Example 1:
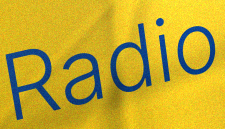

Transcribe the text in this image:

Radio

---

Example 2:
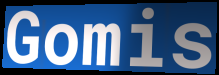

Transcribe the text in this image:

Gomis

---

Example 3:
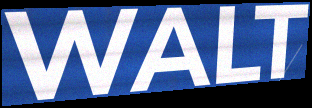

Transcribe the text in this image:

WALT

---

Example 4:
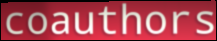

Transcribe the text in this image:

coauthors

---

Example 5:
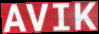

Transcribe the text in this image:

AVIK